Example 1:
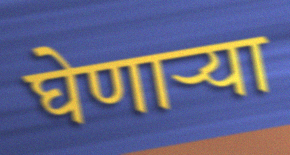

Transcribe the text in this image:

घेणार्‍या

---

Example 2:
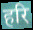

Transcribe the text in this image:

हरि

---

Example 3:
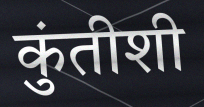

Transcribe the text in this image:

कुंतीशी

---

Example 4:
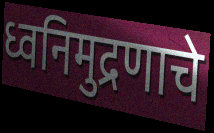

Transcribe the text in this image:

ध्वनिमुद्रणाचे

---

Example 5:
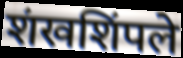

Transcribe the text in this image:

शंखशिंपले